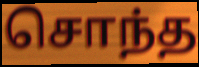
சொந்த